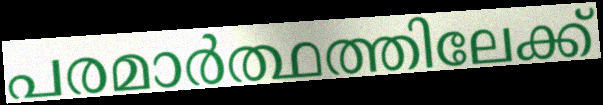
പരമാർത്ഥത്തിലേക്ക്